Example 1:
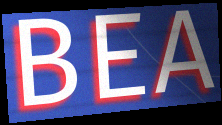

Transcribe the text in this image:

BEA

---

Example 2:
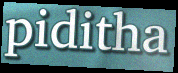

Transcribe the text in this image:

piditha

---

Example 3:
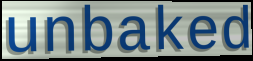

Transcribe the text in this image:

unbaked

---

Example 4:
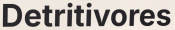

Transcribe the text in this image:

Detritivores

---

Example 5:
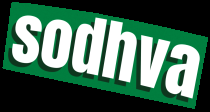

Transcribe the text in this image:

sodhva